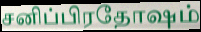
சனிப்பிரதோஷம்